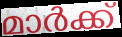
മാർക്ക്